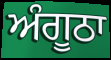
ਅੰਗੂਠਾ